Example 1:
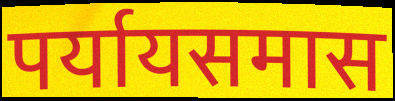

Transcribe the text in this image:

पर्यायसमास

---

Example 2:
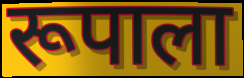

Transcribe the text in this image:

रूपाला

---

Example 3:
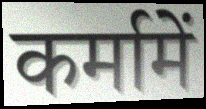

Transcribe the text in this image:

कर्मामें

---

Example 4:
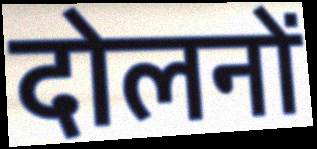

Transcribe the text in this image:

दोलनों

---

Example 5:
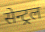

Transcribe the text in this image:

सेन्ट्रल